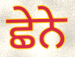
ਛੇਨੇ